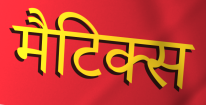
मैटिक्स